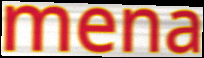
mena